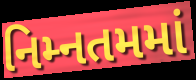
નિમ્નતમમાં